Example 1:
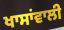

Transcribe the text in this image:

ਖਾਸਾਂਵਾਲੀ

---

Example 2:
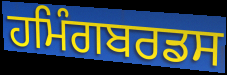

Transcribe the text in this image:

ਹਮਿੰਗਬਰਡਸ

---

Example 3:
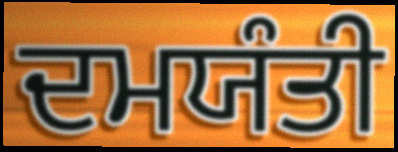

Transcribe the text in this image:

ਦਮਯੰਤੀ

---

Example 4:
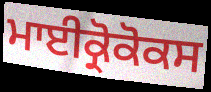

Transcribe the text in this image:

ਮਾਈਕ੍ਰੋਕੋਕਸ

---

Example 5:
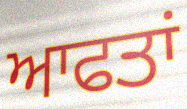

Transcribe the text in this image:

ਆਫਤਾਂ